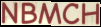
NBMCH